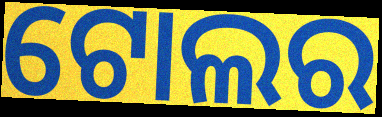
ଟୋଲର